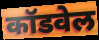
कॉडवेल